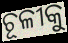
ଚୂଳୀକୁ